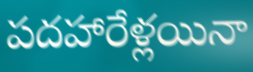
పదహారేళ్లయినా